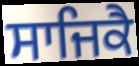
ਸਾਜਿਕੈ